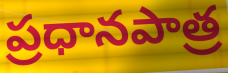
ప్రధానపాత్ర